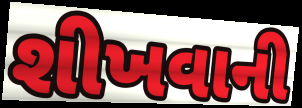
શીખવાની